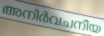
അനിർവചനീയ